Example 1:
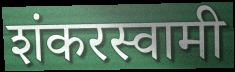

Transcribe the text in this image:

शंकरस्वामी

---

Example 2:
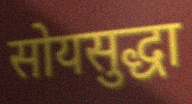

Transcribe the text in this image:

सोयसुद्धा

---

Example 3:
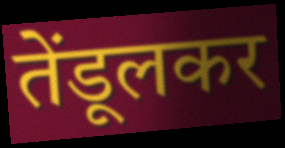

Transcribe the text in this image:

तेंडूलकर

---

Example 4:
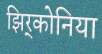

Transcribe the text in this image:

झिर्कोनिया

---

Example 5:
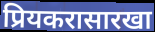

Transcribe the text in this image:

प्रियकरासारखा